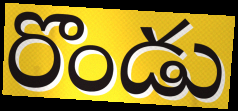
రొండు